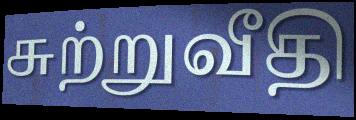
சுற்றுவீதி